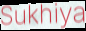
Sukhiya